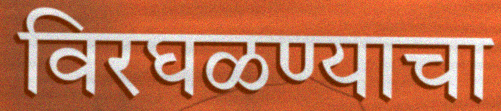
विरघळण्याचा